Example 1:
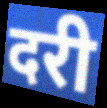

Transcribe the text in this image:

दरी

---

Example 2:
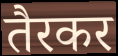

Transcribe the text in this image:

तैरकर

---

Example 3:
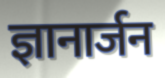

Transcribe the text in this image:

ज्ञानार्जन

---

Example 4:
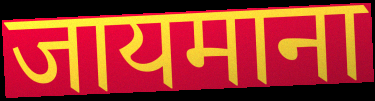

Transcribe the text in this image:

जायमाना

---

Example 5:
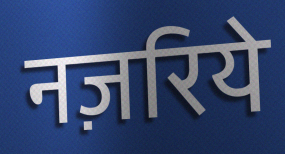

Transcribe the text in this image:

नज़रिये